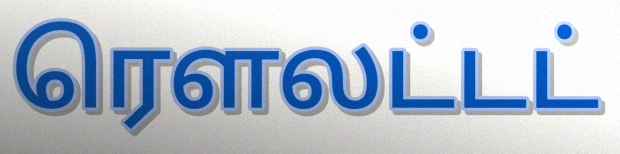
ரௌலட்டட்